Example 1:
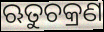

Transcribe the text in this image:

ଋତୁଚକ୍ରଣ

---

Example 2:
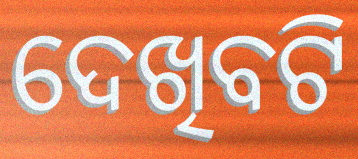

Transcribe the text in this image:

ଦେଖିବଟି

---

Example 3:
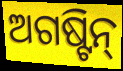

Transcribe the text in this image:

ଅଗଷ୍ଟିନ୍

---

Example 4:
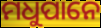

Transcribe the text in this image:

ମଧୁପାନେ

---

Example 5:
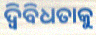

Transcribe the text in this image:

ଦ୍ୱିବିଧତାକୁ